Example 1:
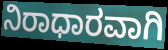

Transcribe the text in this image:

ನಿರಾಧಾರವಾಗಿ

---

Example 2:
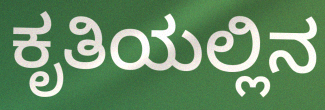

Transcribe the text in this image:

ಕೃತಿಯಲ್ಲಿನ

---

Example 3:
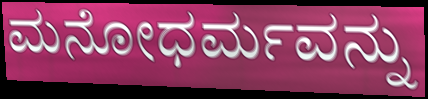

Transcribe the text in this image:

ಮನೋಧರ್ಮವನ್ನು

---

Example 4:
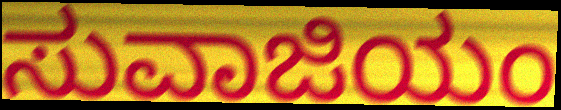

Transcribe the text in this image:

ಸುವಾಜಿಯಂ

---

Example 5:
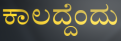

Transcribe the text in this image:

ಕಾಲದ್ದೆಂದು